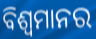
ବିଶ୍ୱମାନର